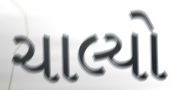
ચાલ્યો